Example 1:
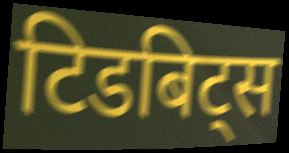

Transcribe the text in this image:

टिडबिट्स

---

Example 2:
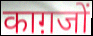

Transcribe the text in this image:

काग़जों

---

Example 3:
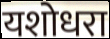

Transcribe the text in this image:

यशोधरा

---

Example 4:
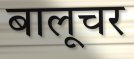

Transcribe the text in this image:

बालूचर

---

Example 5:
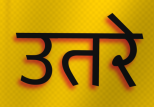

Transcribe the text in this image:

उतरे